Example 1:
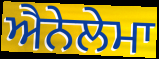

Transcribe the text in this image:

ਐਨੇਲੇਮਾ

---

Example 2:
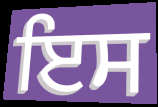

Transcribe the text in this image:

ਇਸ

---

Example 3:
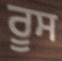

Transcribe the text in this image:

ਰੂਸ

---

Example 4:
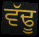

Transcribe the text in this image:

ਵੱਢੂ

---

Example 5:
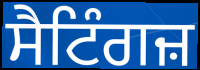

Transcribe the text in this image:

ਸੈਟਿੰਗਜ਼